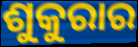
ଶୁକୁରାର